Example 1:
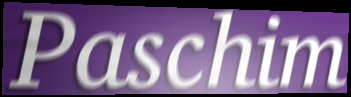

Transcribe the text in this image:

Paschim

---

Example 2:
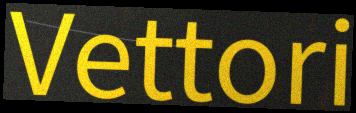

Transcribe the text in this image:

Vettori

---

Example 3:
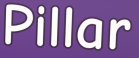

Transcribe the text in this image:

Pillar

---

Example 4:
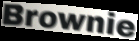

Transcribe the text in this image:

Brownie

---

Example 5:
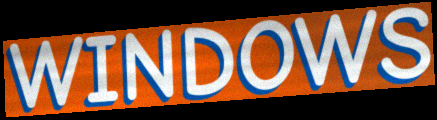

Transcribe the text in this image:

WINDOWS